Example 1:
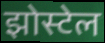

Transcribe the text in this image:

झोस्टेल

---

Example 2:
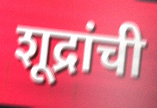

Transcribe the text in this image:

शूद्रांची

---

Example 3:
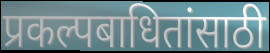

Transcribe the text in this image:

प्रकल्पबाधितांसाठी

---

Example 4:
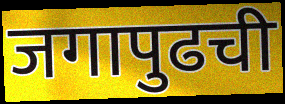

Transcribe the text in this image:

जगापुढची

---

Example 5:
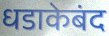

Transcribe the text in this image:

धडाकेबंद